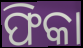
ଫିକା